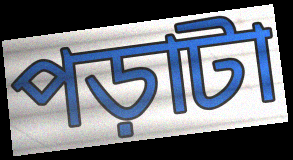
পড়াটা